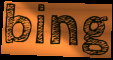
bing